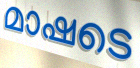
മാഷടെ